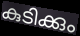
കുടിക്കും